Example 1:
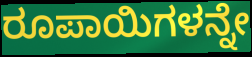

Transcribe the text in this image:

ರೂಪಾಯಿಗಳನ್ನೇ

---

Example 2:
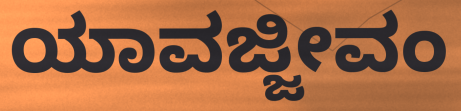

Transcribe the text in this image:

ಯಾವಜ್ಜೀವಂ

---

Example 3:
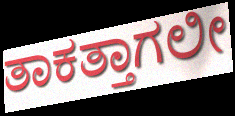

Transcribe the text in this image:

ತಾಕತ್ತಾಗಲೀ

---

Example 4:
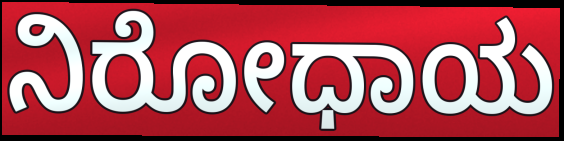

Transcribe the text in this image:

ನಿರೋಧಾಯ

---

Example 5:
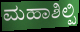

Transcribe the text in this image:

ಮಹಾಶಿಲ್ಪಿ